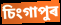
চিংগাপুৰ